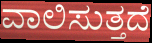
ವಾಲಿಸುತ್ತದೆ